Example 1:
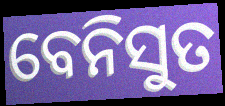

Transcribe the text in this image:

ବେନିସୁତ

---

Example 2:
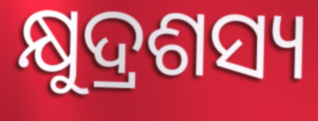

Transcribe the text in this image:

କ୍ଷୁଦ୍ରଶସ୍ୟ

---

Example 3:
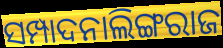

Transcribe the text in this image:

ସମ୍ପାଦନାଲିଙ୍ଗରାଜ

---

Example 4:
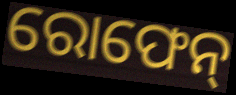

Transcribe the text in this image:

ରୋଫେନ୍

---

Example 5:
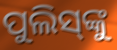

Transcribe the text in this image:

ପୁଲିସ୍‌ଙ୍କୁ